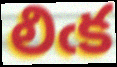
లిఁక